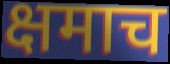
क्षमाच